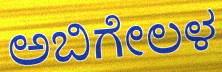
ಅಬಿಗೇಲಳ